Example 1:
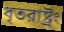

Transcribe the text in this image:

ধৃতরাষ্ট্রং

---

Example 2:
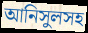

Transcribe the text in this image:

আনিসুলসহ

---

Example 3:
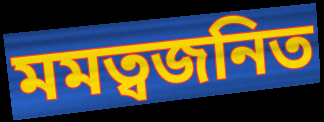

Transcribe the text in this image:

মমত্বজনিত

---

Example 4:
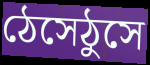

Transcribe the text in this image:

ঠেসেঠুসে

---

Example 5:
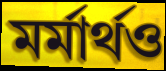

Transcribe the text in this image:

মর্মার্থও